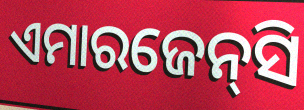
ଏମାରଜେନ୍‌ସି